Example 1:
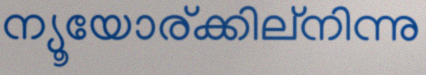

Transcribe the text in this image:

ന്യൂയോര്ക്കില്നിന്നു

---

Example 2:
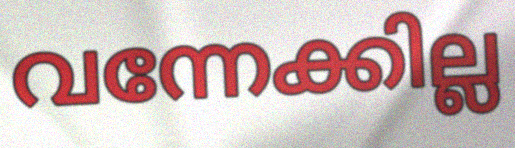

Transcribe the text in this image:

വന്നേക്കില്ല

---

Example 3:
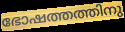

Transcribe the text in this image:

ഭോഷത്തത്തിനു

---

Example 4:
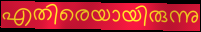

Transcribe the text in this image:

എതിരെയായിരുന്നു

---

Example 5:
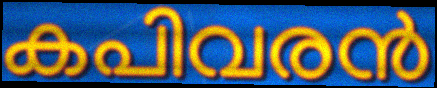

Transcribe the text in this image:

കപിവരൻ